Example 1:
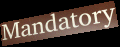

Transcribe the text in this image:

Mandatory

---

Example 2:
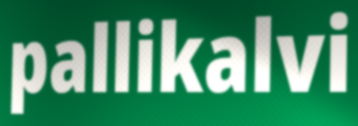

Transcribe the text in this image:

pallikalvi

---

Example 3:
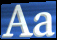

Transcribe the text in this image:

Aa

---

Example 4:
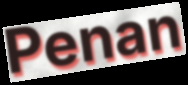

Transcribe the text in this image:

Penan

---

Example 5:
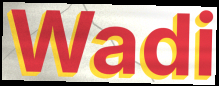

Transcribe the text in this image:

Wadi